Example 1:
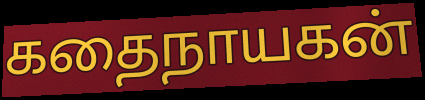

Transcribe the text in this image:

கதைநாயகன்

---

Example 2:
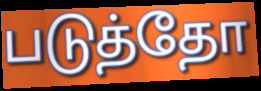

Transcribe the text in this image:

படுத்தோ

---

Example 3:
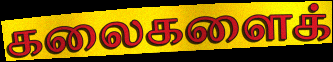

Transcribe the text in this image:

கலைகளைக்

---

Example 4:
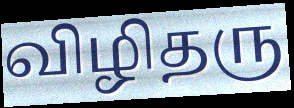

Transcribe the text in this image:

விழிதரு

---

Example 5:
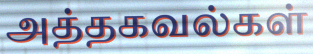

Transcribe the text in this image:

அத்தகவல்கள்